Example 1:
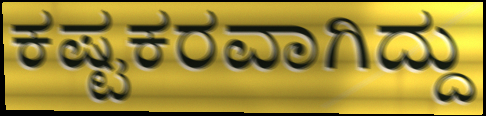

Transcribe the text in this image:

ಕಷ್ಟಕರವಾಗಿದ್ದು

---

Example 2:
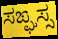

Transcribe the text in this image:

ಸಙ್ಘಸ್ಸ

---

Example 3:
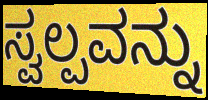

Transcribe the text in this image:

ಸ್ವಲ್ಪವನ್ನು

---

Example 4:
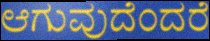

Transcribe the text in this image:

ಆಗುವುದೆಂದರೆ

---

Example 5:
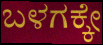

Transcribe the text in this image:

ಬಳಗಕ್ಕೇ